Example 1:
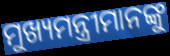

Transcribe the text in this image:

ମୁଖ୍ୟମନ୍ତ୍ରୀମାନଙ୍କୁ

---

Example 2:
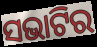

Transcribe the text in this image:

ସଭାଟିର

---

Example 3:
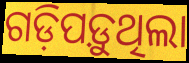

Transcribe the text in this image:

ଗଡ଼ିପଡ଼ୁଥିଲା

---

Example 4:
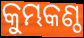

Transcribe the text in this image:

କୁମ୍ଭକଣ୍ଠ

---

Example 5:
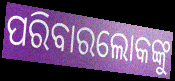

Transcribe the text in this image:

ପରିବାରଲୋକଙ୍କୁ